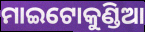
ମାଇଟୋକୁଣ୍ଡିଆ